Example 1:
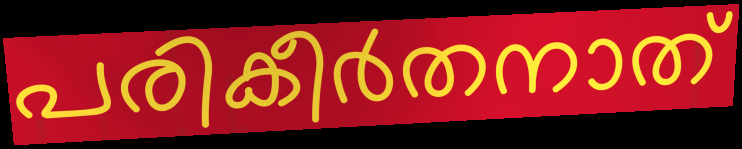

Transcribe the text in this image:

പരികീർതനാത്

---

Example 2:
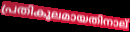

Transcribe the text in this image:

പ്രതികൂലമായതിനാല്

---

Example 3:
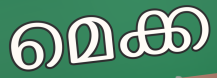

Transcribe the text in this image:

മെക്ക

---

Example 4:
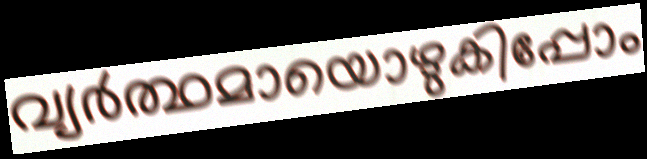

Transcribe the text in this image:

വ്യർത്ഥമായൊഴുകിപ്പോം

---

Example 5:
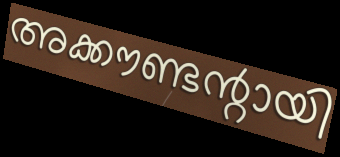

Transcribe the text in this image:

അക്കൗണ്ടന്റായി